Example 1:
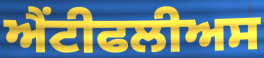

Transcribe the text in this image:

ਐਂਟੀਫਲੀਅਸ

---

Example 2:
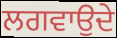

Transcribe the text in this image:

ਲਗਵਾਉਦੇ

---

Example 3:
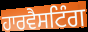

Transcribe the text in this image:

ਹਾਰਵੈਸਟਿੰਗ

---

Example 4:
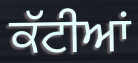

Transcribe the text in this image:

ਕੱਟੀਆਂ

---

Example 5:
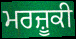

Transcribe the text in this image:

ਮਰਜ਼ੂਕੀ